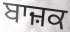
ਬਾਜ਼ਕ